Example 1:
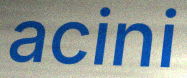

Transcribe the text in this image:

acini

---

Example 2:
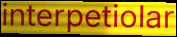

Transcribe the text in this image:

interpetiolar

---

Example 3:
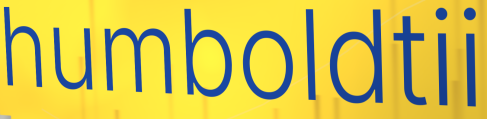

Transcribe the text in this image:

humboldtii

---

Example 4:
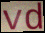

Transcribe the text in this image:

vd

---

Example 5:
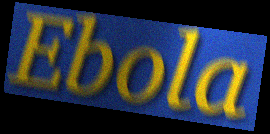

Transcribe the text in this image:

Ebola